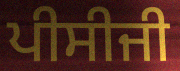
ਪੀਸੀਜੀ